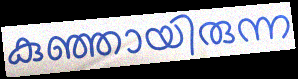
കുഞ്ഞായിരുന്ന